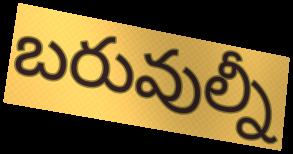
బరువుల్నీ